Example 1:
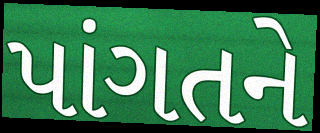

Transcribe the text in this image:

પાંગતને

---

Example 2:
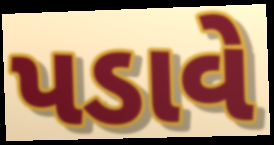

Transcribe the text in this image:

પડાવે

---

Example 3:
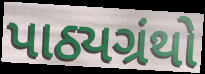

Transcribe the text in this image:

પાઠ્યગ્રંથો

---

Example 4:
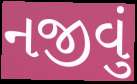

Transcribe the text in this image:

નજીવું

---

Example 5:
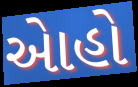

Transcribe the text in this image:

એાહો